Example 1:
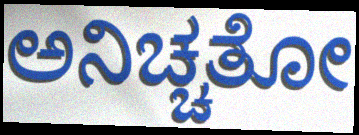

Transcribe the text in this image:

ಅನಿಚ್ಚತೋ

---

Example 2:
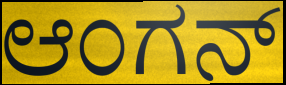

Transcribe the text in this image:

ಆಂಗನ್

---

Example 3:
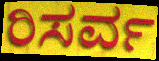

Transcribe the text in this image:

ರಿಸರ್ವ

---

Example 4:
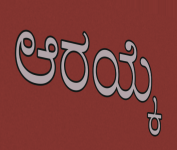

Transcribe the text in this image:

ಆರಯ್ಕೆ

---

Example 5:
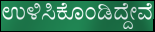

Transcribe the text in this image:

ಉಳಿಸಿಕೊಂಡಿದ್ದೇವೆ